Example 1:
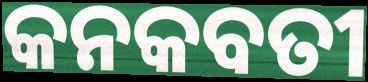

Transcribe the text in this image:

କନକବତୀ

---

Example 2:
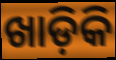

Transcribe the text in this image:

ଖାଡ଼ିକି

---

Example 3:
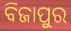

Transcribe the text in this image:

ବିଜାପୁର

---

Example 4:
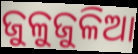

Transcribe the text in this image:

ଜୁଳୁଜୁଳିଆ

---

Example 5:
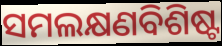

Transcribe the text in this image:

ସମଲକ୍ଷଣବିଶିଷ୍ଟ